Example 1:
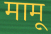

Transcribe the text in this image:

मामू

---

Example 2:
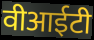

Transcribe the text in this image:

वीआईटी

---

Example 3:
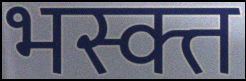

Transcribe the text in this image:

भस्क्त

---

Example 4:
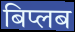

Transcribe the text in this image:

बिप्लब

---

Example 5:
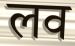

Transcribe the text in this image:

लव